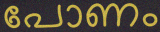
പോണം